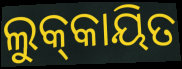
ଲୁକ୍‌କାୟିତ